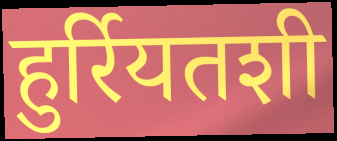
हुर्रियतशी